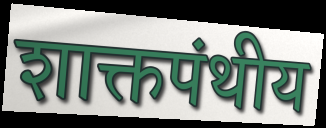
शाक्तपंथीय